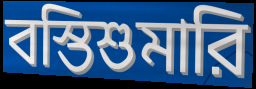
বস্তিশুমারি